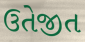
ઉતેજીત